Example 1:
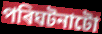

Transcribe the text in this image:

পৰিঘটনাটো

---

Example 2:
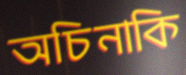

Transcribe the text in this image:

অচিনাকি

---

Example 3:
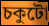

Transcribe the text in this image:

চকুটো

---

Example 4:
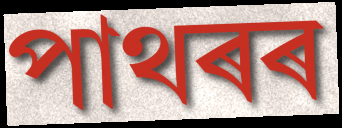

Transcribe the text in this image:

পাথৰৰ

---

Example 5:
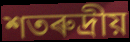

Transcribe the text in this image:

শতৰুদ্ৰীয়